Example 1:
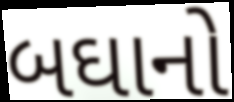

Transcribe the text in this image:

બઘાનો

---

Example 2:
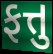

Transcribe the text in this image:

ફત્તુ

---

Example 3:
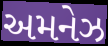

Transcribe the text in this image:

અમનેઝ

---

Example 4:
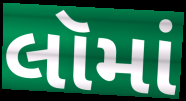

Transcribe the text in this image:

લૉમાં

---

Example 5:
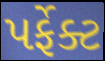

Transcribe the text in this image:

પર્ફેક્ટ